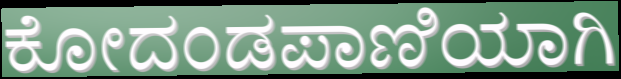
ಕೋದಂಡಪಾಣಿಯಾಗಿ